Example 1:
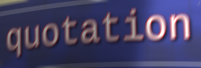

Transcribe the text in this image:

quotation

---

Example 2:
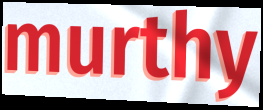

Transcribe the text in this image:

murthy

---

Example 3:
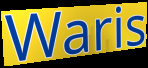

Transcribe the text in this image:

Waris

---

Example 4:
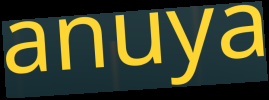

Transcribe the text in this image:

anuya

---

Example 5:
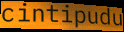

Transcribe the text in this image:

cintipudu